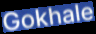
Gokhale